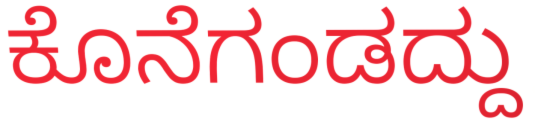
ಕೊನೆಗಂಡದ್ದು